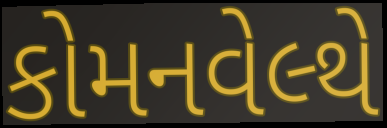
કોમનવેલ્થે